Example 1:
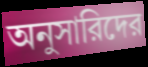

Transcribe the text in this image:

অনুসারিদের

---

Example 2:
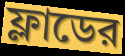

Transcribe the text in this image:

ফ্লাডের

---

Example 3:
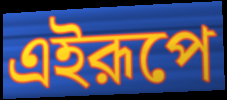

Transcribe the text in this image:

এইরূপে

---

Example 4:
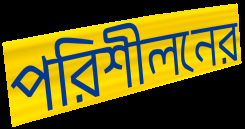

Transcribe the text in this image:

পরিশীলনের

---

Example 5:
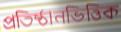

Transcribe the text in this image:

প্রতিষ্ঠানভিত্তিক